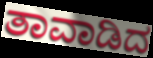
ತಾವಾಡಿದ